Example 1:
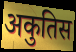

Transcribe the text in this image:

अकुतिस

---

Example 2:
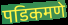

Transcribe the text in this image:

पडिकमणे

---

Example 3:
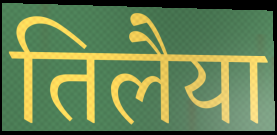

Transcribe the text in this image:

तिलैया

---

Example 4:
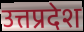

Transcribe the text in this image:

उत्तप्रदेश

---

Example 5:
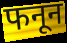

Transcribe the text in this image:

फनून